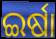
ଇର୍ଷା